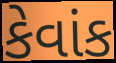
કેવાંક